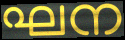
ഘന